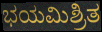
ಭಯಮಿಶ್ರಿತ